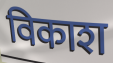
विकाश